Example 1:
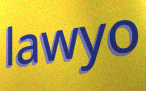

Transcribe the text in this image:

lawyo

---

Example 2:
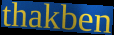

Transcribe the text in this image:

thakben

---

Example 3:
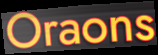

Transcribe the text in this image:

Oraons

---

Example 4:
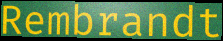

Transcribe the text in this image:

Rembrandt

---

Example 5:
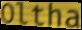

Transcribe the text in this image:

Oltha